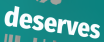
deserves